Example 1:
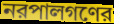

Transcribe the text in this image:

নরপালগণের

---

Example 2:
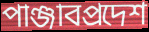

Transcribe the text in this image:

পাঞ্জাবপ্রদেশ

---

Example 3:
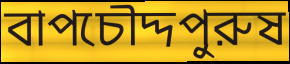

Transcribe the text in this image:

বাপচৌদ্দপুরুষ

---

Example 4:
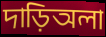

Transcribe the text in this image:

দাড়িঅলা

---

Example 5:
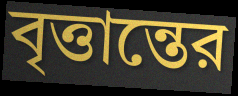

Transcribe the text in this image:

বৃত্তান্তের